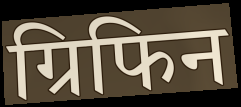
ग्रिफिन